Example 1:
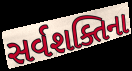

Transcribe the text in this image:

સર્વશક્તિના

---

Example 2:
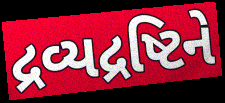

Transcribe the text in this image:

દ્રવ્યદ્રષ્ટિને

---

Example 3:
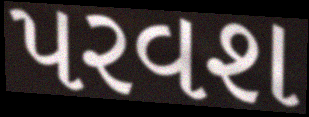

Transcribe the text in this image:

પરવશ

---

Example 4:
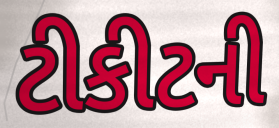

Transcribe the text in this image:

ટીકીટની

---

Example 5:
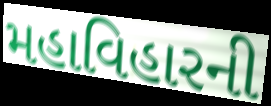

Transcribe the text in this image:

મહાવિહારની